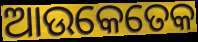
ଆଉକେତେକ